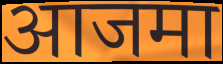
आजमा